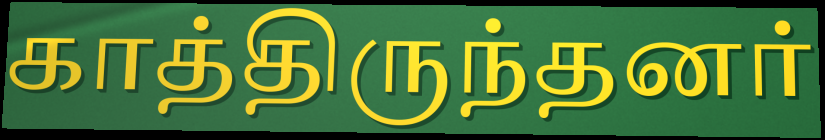
காத்திருந்தனர்